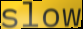
slow